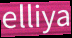
elliya